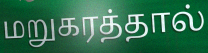
மறுகரத்தால்